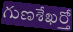
గుణశేఖర్తో